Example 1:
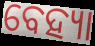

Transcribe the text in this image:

ବେହ୍ୟା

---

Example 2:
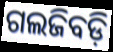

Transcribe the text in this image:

ଗଲଜିବଡ଼ି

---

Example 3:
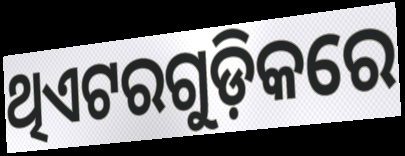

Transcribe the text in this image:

ଥିଏଟରଗୁଡ଼ିକରେ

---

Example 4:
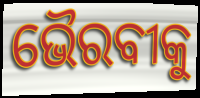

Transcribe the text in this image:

ଭୈରବୀକୁ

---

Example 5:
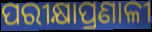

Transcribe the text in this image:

ପରୀକ୍ଷାପ୍ରଣାଳୀ